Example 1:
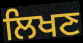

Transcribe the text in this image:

ਲਿਖਣ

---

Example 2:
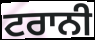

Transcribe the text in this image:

ਟਰਾਨੀ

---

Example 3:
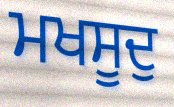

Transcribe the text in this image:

ਮਖਸੂਦੁ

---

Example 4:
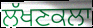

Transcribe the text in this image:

ਲੱਖਣਕਲਾ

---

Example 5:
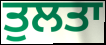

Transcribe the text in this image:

ਤੁਲਤਾ